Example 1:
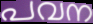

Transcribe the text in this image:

പവന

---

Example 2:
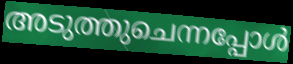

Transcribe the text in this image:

അടുത്തുചെന്നപ്പോൾ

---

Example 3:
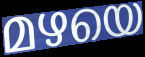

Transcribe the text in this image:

മഴയെ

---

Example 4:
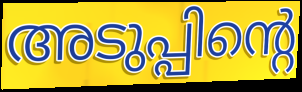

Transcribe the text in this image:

അടുപ്പിന്റെ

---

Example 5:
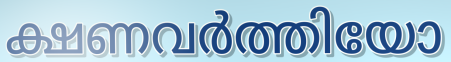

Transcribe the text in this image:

ക്ഷണവർത്തിയോ